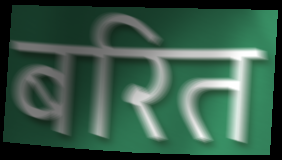
बरित